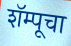
शॅम्पूचा